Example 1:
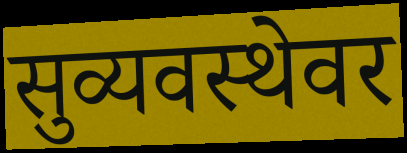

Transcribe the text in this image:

सुव्यवस्थेवर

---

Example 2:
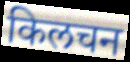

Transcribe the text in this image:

किलचन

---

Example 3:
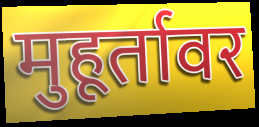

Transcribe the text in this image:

मुहूर्तावर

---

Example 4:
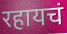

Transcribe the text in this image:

रहायचं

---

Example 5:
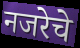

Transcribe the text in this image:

नजरेचे